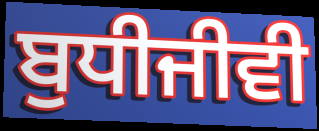
ਬੁਧੀਜੀਵੀ